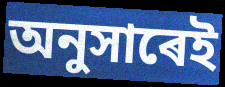
অনুসাৰেই